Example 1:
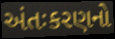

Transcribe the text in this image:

અંતઃકરણનો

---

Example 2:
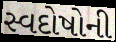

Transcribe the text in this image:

સ્વદોષોની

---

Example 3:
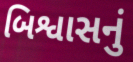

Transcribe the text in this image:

બિશ્વાસનું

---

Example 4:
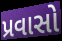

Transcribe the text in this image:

પ્રવાસો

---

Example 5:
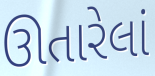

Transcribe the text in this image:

ઊતારેલાં